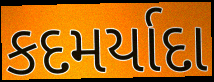
કદમર્યાદા